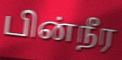
பின்நீர